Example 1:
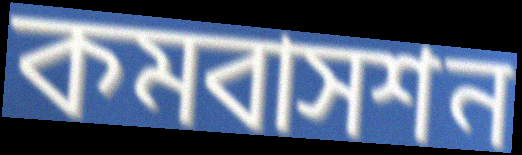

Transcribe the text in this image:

কমবাসশন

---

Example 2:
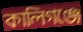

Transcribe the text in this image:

কালিগঞ্জে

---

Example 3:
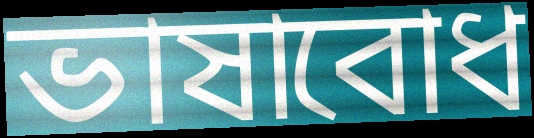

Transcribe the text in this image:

ভাষাবোধ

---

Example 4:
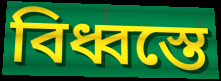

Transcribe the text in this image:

বিধ্বস্তে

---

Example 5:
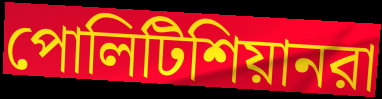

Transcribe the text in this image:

পোলিটিশিয়ানরা